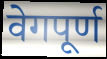
वेगपूर्ण